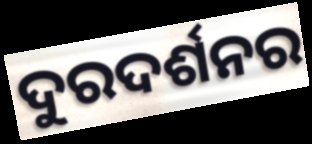
ଦୁରଦର୍ଶନର